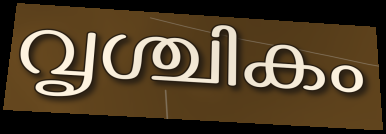
വൃശ്ചികം